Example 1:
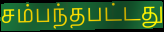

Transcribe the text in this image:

சம்பந்தபட்டது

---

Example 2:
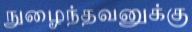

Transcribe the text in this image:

நுழைந்தவனுக்கு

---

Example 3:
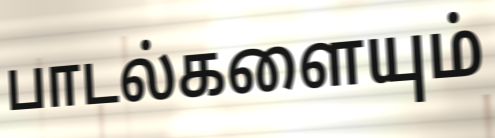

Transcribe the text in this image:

பாடல்களையும்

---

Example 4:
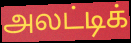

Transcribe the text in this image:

அலட்டிக்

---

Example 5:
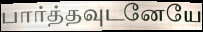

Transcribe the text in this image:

பார்த்தவுடனேயே